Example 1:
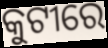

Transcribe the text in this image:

କୁଟୀରେ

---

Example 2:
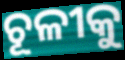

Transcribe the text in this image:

ଚୂଳୀକୁ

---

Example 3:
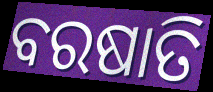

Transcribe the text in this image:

ବରଷାତି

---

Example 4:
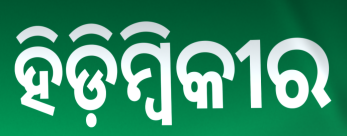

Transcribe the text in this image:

ହିଡ଼ିମ୍ବିକୀର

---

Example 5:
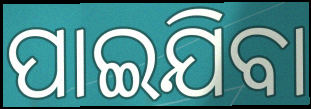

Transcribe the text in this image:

ପାଇଯିବା